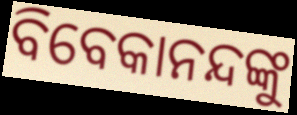
ବିବେକାନନ୍ଦଙ୍କୁ